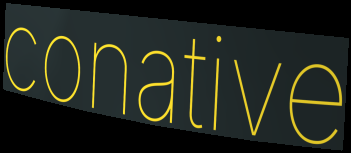
conative